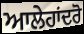
ਆਲੇਹਾਂਦਰੋ